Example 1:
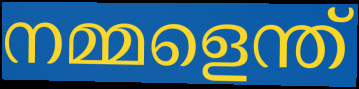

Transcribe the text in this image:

നമ്മളെന്ത്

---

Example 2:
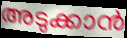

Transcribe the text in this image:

അടുക്കാൻ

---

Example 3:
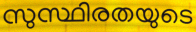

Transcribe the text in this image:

സുസ്ഥിരതയുടെ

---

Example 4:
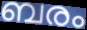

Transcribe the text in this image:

ബരം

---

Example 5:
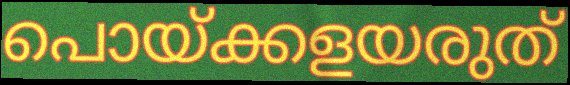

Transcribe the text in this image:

പൊയ്ക്കളയരുത്